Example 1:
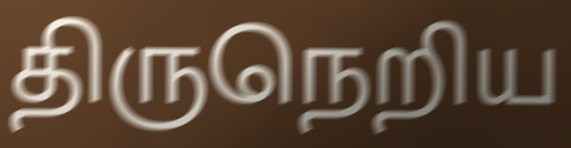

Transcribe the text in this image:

திருநெறிய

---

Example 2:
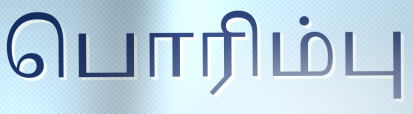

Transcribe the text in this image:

பொரிம்பு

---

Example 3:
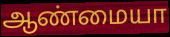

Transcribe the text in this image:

ஆண்மையா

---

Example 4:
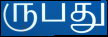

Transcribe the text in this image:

ருபது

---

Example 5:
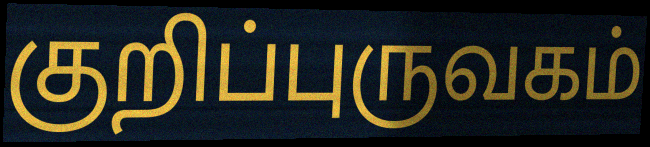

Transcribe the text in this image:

குறிப்புருவகம்